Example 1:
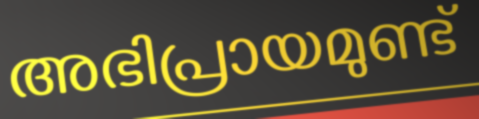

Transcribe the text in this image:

അഭിപ്രായമുണ്ട്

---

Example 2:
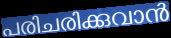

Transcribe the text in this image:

പരിചരിക്കുവാൻ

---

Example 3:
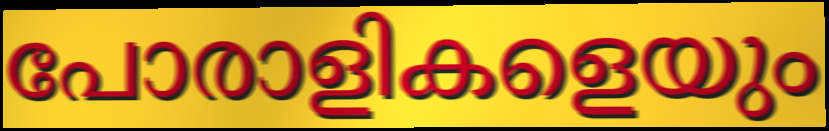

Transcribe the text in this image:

പോരാളികളെയും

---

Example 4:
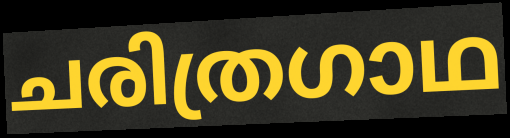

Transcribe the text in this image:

ചരിത്രഗാഥ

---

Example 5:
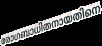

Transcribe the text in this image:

രോഗബാധിതനായതിനെ